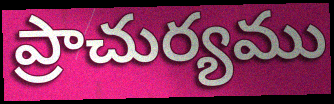
ప్రాచుర్యము